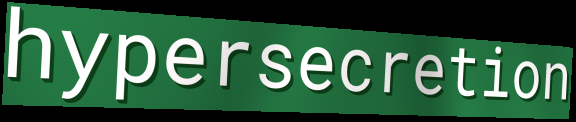
hypersecretion